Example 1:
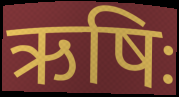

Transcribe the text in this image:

ऋषिः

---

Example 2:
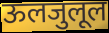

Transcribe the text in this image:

ऊलजुलूल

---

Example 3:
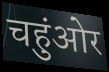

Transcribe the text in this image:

चहुंओर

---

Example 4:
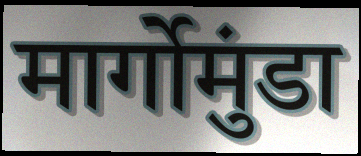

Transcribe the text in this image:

मार्गोमुंडा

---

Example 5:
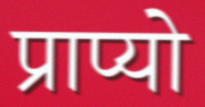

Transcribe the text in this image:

प्राप्यो